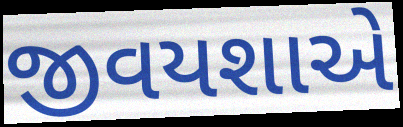
જીવયશાએ